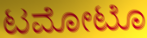
ಟಮೋಟೊ